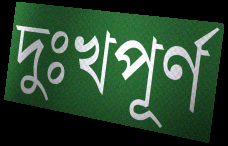
দুঃখপূর্ণ